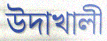
উদাখালী